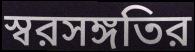
স্বরসঙ্গতির